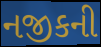
નજીકની